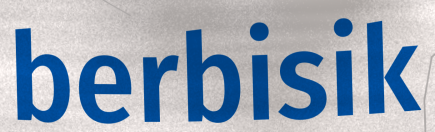
berbisik